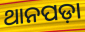
ଥାନପଡ଼ା